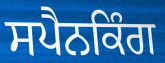
ਸਪੈਨਕਿੰਗ